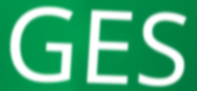
GES